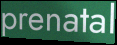
prenatal